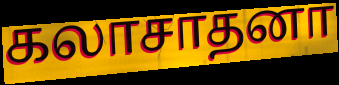
கலாசாதனா